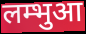
लम्भुआ